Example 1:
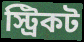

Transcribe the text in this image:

স্ট্রিকট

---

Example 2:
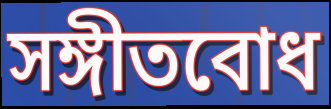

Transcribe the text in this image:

সঙ্গীতবোধ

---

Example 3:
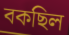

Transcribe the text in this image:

বকছিল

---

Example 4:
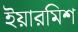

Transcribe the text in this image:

ইয়ারমিশ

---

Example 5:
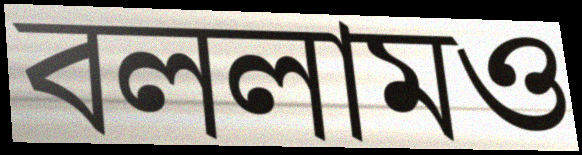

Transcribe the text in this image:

বললামও